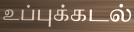
உப்புக்கடல்